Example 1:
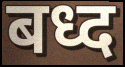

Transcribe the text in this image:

बध्द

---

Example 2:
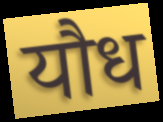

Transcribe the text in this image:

यौध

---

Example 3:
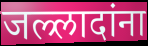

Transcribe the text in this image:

जल्लादांना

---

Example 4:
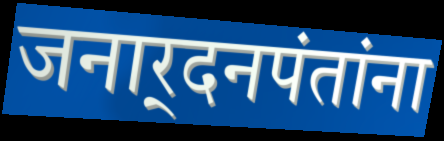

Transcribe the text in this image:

जनार्दनपंतांना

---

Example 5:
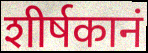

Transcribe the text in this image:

शीर्षकानं